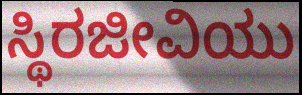
ಸ್ಥಿರಜೀವಿಯು